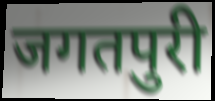
जगतपुरी